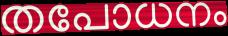
തപോധനം